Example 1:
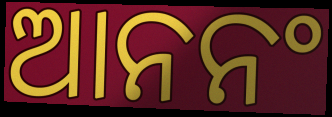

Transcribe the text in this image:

ଆନନଂ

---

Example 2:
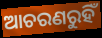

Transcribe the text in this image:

ଆଚରଣରୁହିଁ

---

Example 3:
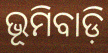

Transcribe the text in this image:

ଭୂମିବାଡ଼ି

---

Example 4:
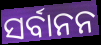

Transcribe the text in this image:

ସର୍ବାନନ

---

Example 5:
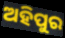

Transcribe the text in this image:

ଅହିପୁର